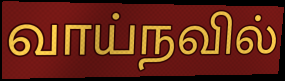
வாய்நவில்